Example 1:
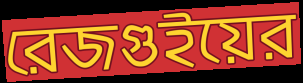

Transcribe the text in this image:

রেজগুইয়ের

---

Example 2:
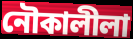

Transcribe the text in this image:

নৌকালীলা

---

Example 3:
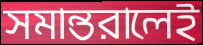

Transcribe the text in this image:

সমান্তরালেই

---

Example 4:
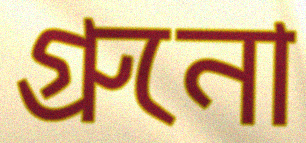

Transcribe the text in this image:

গ্রুনো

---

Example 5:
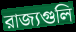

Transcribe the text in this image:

রাজ্যগুলি